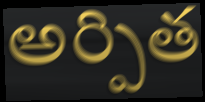
అర్పిత